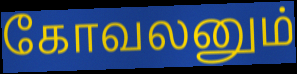
கோவலனும்